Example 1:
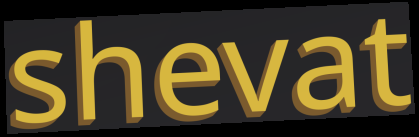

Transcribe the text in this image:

shevat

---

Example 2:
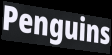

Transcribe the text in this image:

Penguins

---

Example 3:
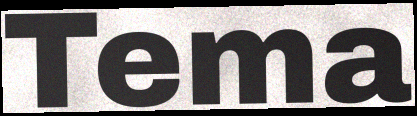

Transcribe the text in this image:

Tema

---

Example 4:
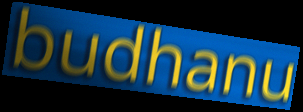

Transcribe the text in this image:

budhanu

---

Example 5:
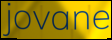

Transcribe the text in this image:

jovane